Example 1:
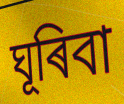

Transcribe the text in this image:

ঘূৰিবা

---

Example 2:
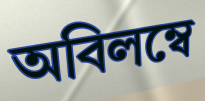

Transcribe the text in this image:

অবিলম্বে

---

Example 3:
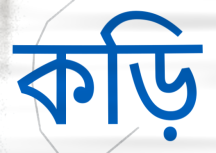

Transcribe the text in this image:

কড়ি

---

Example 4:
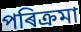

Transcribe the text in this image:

পৰিক্ৰমা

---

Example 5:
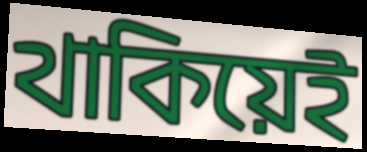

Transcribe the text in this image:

থাকিয়েই